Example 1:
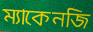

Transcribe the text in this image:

ম্যাকেনজি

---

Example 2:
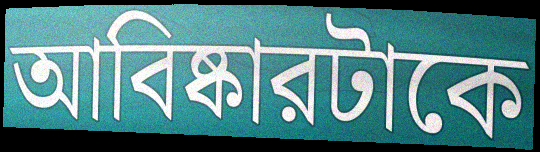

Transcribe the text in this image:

আবিষ্কারটাকে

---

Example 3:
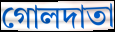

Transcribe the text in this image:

গোলদাতা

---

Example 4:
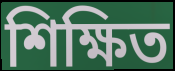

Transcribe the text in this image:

শিক্ষিত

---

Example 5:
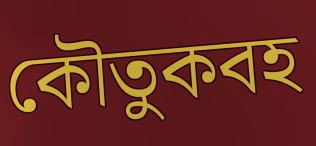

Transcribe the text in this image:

কৌতুকবহ